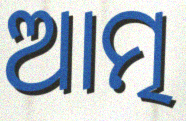
ଆତ୍ମ